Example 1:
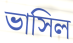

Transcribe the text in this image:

ভাসিল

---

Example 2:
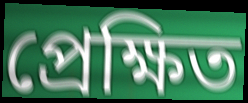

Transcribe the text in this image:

প্রেক্ষিত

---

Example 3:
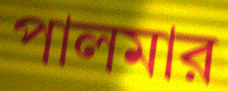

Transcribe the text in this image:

পালমার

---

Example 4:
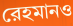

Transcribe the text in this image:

রেহমানও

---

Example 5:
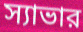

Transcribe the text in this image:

স্যাভার